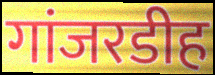
गांजरडीह